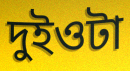
দুইওটা